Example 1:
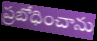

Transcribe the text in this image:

ప్రబోధించాను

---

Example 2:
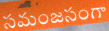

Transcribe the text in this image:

సమంజసంగా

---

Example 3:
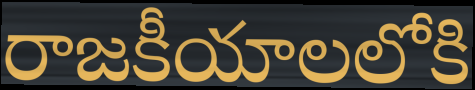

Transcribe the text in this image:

రాజకీయాలలోకి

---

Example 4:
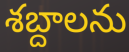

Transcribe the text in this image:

శబ్దాలను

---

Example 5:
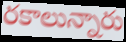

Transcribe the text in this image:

రకాలున్నారు